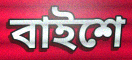
বাইশে